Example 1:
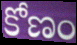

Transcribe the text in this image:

కోణం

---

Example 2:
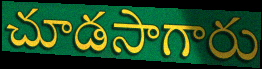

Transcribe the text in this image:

చూడసాగారు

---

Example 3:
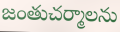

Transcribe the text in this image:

జంతుచర్మాలను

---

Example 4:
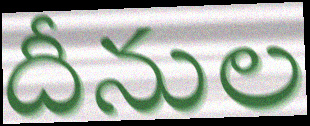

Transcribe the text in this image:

దీనుల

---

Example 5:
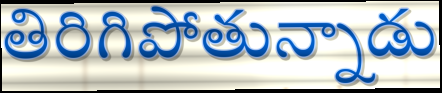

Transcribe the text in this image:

తిరిగిపోతున్నాడు